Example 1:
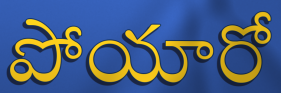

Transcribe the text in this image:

పోయారో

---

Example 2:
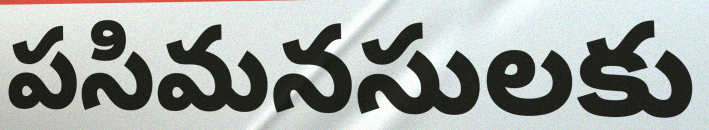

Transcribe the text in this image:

పసిమనసులకు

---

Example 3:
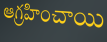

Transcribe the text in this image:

ఆగ్రహించాయి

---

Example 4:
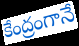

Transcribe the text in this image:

కేంద్రంగానే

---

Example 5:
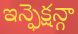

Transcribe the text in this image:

ఇన్ఫెక్షన్గా